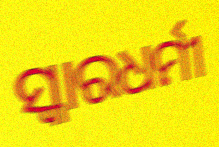
ସ୍କାରଧର୍ମୀ